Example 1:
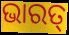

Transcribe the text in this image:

ଭାରତ୍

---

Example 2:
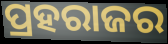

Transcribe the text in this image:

ପ୍ରହରାଜର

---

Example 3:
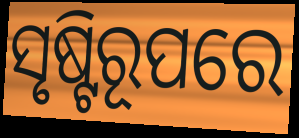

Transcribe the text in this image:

ସୃଷ୍ଟିରୂପରେ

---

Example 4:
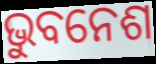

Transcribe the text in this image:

ଭୁବନେଶ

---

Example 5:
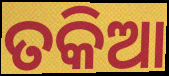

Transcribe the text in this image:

ତକିଆ